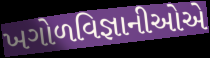
ખગોળવિજ્ઞાનીઓએ